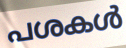
പശകൾ